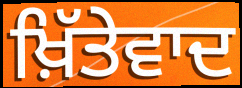
ਖ਼ਿੱਤੇਵਾਦ